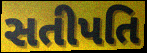
સતીપતિ